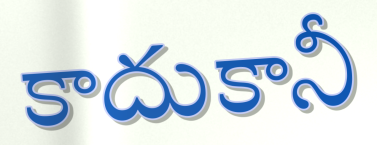
కాదుకానీ